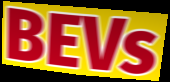
BEVs